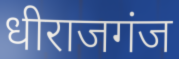
धीराजगंज